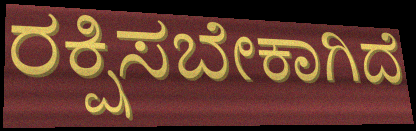
ರಕ್ಷಿಸಬೇಕಾಗಿದೆ